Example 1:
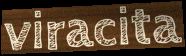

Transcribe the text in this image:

viracita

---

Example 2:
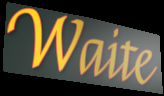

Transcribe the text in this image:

Waite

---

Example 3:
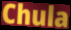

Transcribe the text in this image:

Chula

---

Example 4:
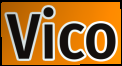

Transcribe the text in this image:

Vico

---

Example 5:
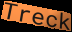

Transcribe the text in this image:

Treck